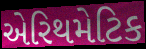
એરિથમેટિક